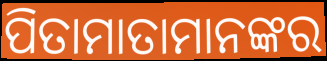
ପିତାମାତାମାନଙ୍କର